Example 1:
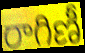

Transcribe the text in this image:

రాగిణీ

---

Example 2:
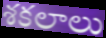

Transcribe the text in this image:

శకలాలు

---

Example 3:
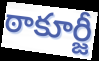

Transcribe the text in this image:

ఠాకూర్జీ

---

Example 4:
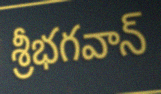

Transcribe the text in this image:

శ్రీభగవాన్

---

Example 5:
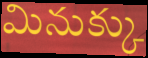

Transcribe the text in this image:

మినుక్కు